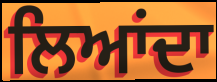
ਲਿਆਂਦਾ